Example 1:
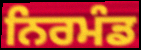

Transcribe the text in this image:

ਨਿਰਮੰਡ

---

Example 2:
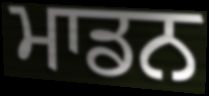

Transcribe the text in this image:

ਮਾਡਨ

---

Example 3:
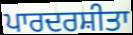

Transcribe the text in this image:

ਪਾਰਦਰਸ਼ੀਤਾ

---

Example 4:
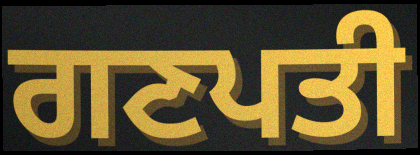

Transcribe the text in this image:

ਗਣਪਤੀ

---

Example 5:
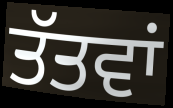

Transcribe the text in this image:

ਤੱਤਵਾਂ